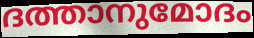
ദത്താനുമോദം